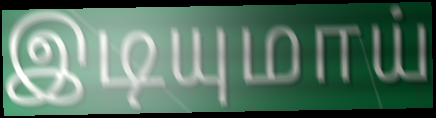
இடியுமாய்